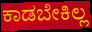
ಕಾಡಬೇಕಿಲ್ಲ